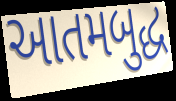
આતમબુદ્ધ